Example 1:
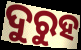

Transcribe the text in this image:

ଦୁରୁହ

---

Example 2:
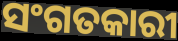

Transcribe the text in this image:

ସଂଗତକାରୀ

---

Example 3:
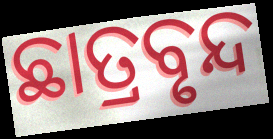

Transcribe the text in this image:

ଛାତ୍ରବୃନ୍ଦ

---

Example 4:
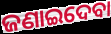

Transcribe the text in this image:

ଜଣାଇଦେବା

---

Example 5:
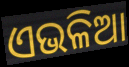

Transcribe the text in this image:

ଏଭଳିଆ